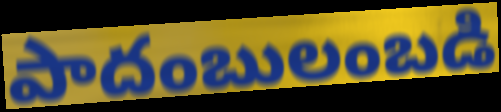
పాదంబులంబడి